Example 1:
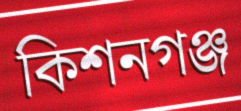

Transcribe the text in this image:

কিশনগঞ্জ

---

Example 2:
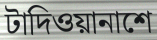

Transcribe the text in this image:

টাদিওয়ানাশে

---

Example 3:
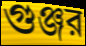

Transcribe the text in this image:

গুঞ্জর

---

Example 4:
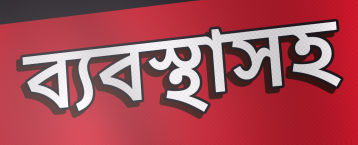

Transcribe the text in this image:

ব্যবস্থাসহ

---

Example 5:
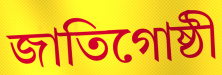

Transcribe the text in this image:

জাতিগোষ্ঠী